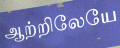
ஆற்றிலேயே